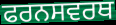
ਫਰਨਸਵਰਥ